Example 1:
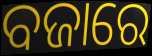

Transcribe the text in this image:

ବଜାରେ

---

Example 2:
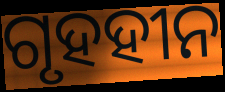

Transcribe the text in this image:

ଗୃହହୀନ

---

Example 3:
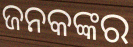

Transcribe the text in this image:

ଜନକଙ୍କର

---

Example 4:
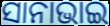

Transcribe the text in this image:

ସାନାଭାଇ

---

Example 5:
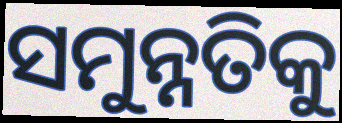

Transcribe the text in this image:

ସମୁନ୍ନତିକୁ